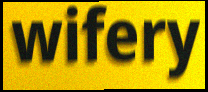
wifery